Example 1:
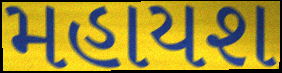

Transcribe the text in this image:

મહાયશ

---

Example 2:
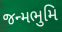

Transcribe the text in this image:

જન્મભુમિ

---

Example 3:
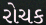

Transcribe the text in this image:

રોચક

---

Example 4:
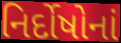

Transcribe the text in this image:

નિર્દોષોનાં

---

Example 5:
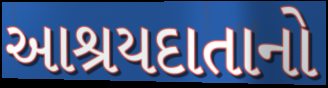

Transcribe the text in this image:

આશ્રયદાતાનો